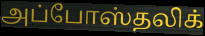
அப்போஸ்தலிக்